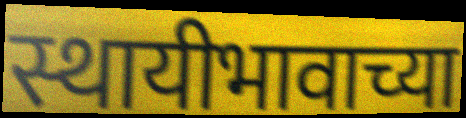
स्थायीभावाच्या